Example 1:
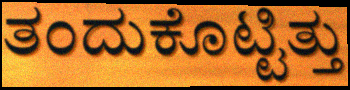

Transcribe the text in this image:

ತಂದುಕೊಟ್ಟಿತ್ತು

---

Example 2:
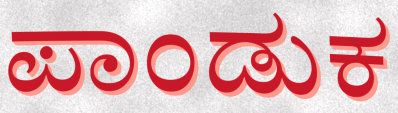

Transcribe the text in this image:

ಪಾಂಡುಕ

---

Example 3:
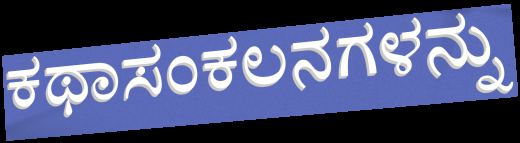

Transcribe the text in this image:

ಕಥಾಸಂಕಲನಗಳನ್ನು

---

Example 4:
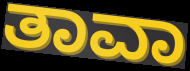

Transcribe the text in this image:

ತಾವಾ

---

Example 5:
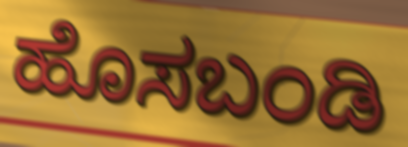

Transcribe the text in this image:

ಹೊಸಬಂಡಿ